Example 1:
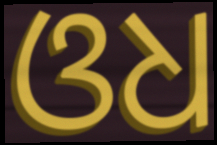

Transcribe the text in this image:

ଓଧ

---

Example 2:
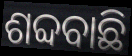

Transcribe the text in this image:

ଶବ୍ଦବାଛି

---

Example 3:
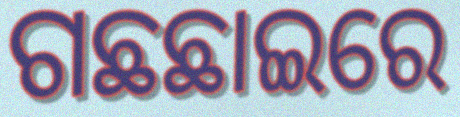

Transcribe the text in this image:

ଗଛଛାଇରେ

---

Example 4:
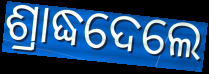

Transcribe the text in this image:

ଶ୍ରାଦ୍ଧଦେଲେ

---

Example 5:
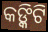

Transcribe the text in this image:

କଙ୍କିଟି